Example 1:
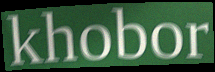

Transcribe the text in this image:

khobor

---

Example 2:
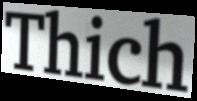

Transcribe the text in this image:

Thich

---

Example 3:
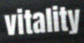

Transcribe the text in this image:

vitality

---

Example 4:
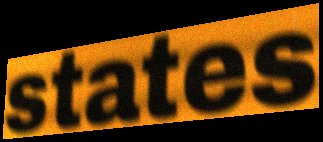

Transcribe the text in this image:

states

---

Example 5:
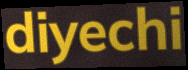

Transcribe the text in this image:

diyechi